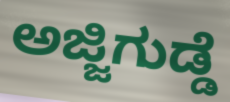
ಅಜ್ಜಿಗುಡ್ಡೆ